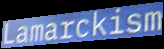
Lamarckism